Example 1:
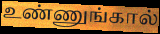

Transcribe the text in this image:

உண்ணுங்கால்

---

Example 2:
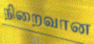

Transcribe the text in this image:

நிறைவான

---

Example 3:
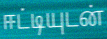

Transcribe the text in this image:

ஈட்டியுடன்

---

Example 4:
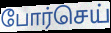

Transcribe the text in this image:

போர்செய்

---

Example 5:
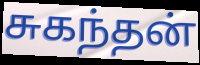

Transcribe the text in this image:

சுகந்தன்